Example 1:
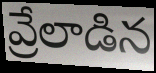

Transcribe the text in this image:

వ్రేలాడిన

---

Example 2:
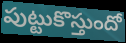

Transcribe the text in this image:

పుట్టుకొస్తుందో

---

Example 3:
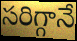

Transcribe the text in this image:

సరిగ్గానే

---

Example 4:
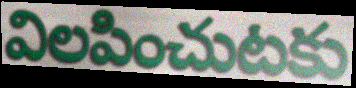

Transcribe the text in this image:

విలపించుటకు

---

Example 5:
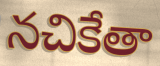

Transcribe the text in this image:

నచికేతా